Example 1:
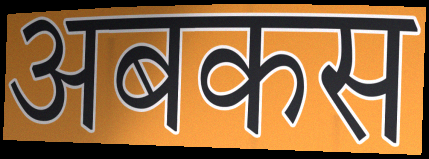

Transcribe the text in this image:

अबकस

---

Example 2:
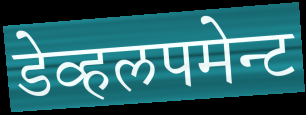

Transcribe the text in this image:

डेव्हलपमेन्ट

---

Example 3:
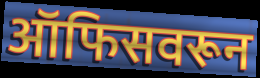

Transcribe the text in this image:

ऑफिसवरून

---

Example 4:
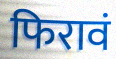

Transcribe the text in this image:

फिरावं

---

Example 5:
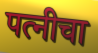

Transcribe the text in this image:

पत्नीचा